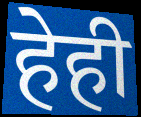
हेही